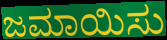
ಜಮಾಯಿಸು